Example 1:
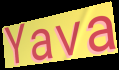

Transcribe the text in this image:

Yava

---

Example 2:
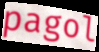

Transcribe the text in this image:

pagol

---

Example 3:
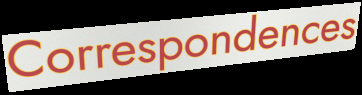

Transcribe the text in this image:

Correspondences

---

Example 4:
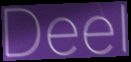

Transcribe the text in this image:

Deel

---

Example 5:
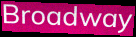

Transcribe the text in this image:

Broadway